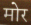
मोर